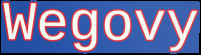
Wegovy